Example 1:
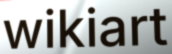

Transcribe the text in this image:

wikiart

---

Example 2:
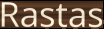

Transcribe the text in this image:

Rastas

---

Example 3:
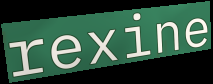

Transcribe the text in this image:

rexine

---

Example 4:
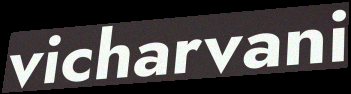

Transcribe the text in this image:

vicharvani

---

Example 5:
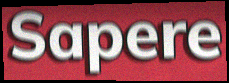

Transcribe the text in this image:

Sapere